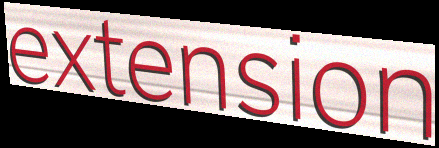
extension